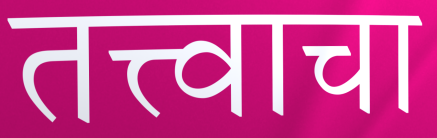
तत्त्वाचा